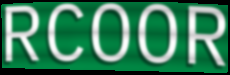
RCOOR